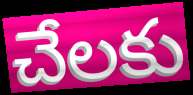
చేలకు